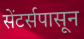
सेंटर्सपासून